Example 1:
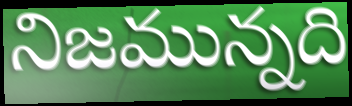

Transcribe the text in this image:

నిజమున్నది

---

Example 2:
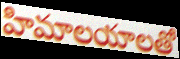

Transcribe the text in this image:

హిమాలయాలతో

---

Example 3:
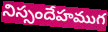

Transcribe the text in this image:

నిస్సందేహముగ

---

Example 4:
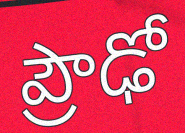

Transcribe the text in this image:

ప్రౌఢో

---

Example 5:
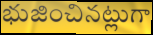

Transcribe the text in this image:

భుజించినట్లుగా